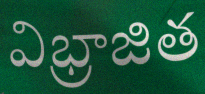
విభ్రాజిత